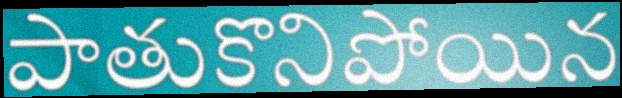
పాతుకొనిపోయిన